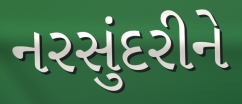
નરસુંદરીને